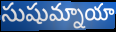
సుషుమ్నాయా